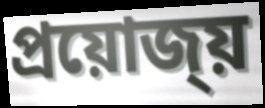
প্ৰয়োজ্য়